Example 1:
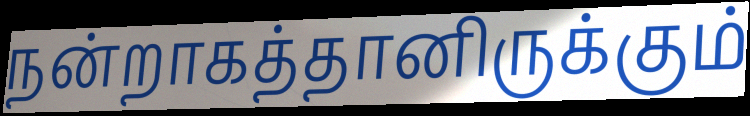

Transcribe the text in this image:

நன்றாகத்தானிருக்கும்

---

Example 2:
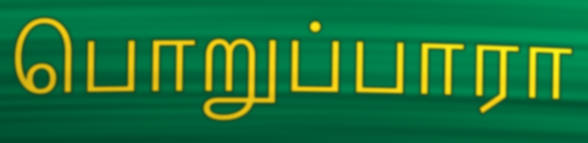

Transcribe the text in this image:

பொறுப்பாரா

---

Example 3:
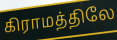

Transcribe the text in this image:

கிராமத்திலே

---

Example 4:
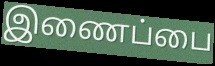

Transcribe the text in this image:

இணைப்பை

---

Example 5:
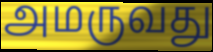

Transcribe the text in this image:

அமருவது